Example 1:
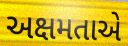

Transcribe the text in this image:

અક્ષમતાએ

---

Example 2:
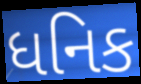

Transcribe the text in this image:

ધનિક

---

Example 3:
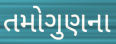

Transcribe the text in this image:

તમોગુણના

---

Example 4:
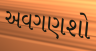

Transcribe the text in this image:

અવગણશો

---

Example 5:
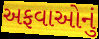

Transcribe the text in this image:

અફવાઓનું